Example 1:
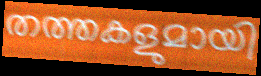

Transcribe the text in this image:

തത്തകളുമായി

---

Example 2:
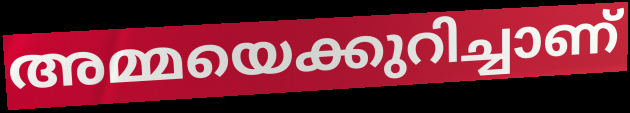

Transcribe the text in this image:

അമ്മയെക്കുറിച്ചാണ്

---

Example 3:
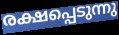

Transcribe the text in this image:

രക്ഷപ്പെടുന്നു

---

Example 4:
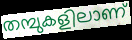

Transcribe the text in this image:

തമ്പുകളിലാണ്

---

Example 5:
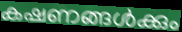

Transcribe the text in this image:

കഷണങ്ങൾക്കും